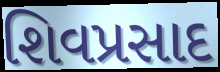
શિવપ્રસાદ